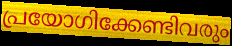
പ്രയോഗിക്കേണ്ടിവരും